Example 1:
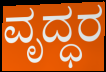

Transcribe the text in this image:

ವೃದ್ಧರ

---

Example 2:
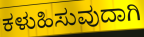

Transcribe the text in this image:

ಕಳುಹಿಸುವುದಾಗಿ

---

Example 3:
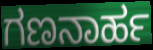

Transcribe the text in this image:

ಗಣನಾರ್ಹ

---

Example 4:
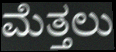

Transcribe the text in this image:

ಮೆತ್ತಲು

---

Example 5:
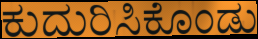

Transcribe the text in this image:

ಕುದುರಿಸಿಕೊಂಡು